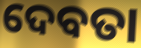
ଦେବତା